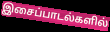
இசைப்பாடல்களில்